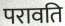
परावति